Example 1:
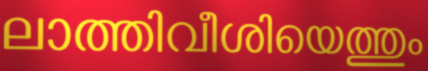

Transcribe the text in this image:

ലാത്തിവീശിയെത്തും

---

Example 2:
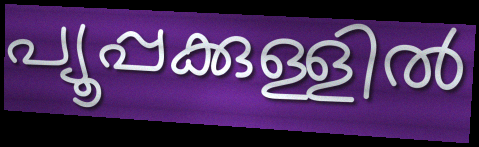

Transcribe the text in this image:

പ്യൂപ്പക്കുള്ളിൽ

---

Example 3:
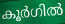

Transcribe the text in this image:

കൂർഗിൽ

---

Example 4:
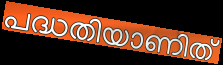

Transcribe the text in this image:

പദ്ധതിയാണിത്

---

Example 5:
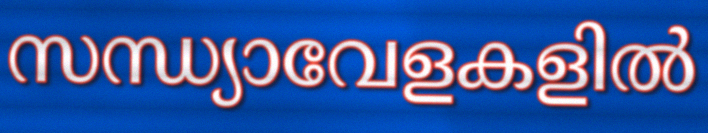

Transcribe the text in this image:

സന്ധ്യാവേളകളിൽ